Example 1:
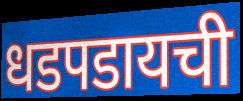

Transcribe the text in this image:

धडपडायची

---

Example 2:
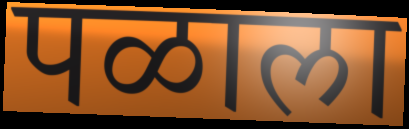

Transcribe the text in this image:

पळाला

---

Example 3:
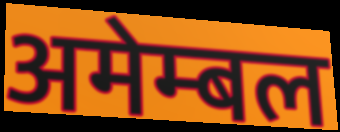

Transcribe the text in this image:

अमेम्बल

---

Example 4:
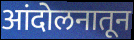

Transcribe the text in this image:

आंदोलनातून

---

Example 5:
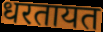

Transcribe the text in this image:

धरतायत